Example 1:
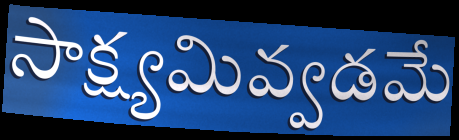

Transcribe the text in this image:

సాక్ష్యమివ్వడమే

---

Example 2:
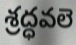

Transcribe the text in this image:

శ్రద్ధవలె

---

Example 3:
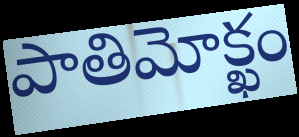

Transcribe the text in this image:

పాతిమోక్ఖం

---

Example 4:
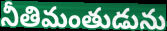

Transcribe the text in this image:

నీతిమంతుడును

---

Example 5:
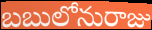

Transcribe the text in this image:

బబులోనురాజు